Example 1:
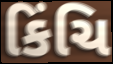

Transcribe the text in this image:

કિંચિ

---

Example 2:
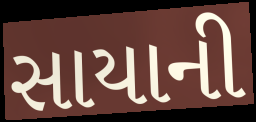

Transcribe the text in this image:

સાયાની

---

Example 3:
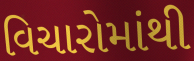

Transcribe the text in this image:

વિચારોમાંથી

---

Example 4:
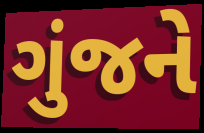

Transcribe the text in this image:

ગુંજને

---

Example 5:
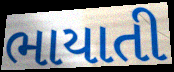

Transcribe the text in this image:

ભાયાતી